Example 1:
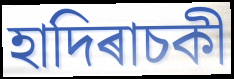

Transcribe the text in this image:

হাদিৰাচকী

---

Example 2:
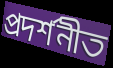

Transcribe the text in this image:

প্ৰদৰ্শনীত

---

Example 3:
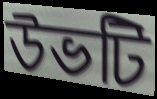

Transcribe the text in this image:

উভটি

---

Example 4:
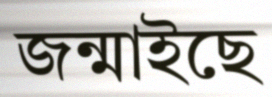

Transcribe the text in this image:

জন্মাইছে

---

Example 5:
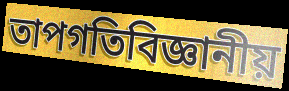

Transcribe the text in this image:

তাপগতিবিজ্ঞানীয়